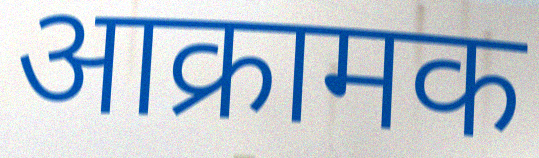
आक्रामक